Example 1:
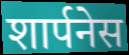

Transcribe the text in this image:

शार्पनेस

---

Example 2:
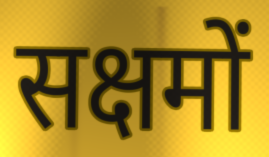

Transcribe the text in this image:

सक्षमों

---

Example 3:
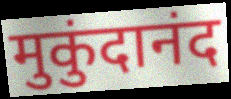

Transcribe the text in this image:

मुकुंदानंद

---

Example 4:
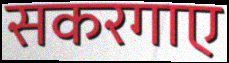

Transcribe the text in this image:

सकरगाए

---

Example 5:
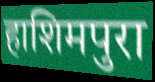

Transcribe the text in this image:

हाशिमपुरा